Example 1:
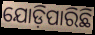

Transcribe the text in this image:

ଯୋଡ଼ିପାରିଛି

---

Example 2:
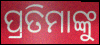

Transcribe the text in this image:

ପ୍ରତିମାଙ୍କୁ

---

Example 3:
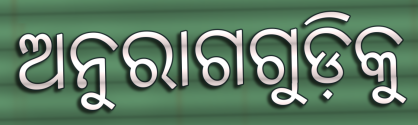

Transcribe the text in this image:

ଅନୁରାଗଗୁଡ଼ିକୁ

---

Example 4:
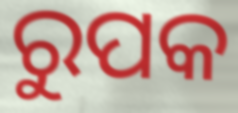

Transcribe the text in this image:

ରୁପକ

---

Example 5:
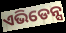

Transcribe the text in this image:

ଏଭିଡେନ୍ସ